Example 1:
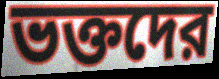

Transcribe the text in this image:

ভক্তদের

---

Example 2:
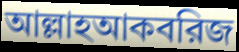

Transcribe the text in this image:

আল্লাহআকবরিজ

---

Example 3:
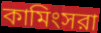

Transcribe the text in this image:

কামিংসরা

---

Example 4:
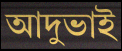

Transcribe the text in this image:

আদুভাই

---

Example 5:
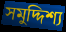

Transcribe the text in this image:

সমুদ্দিশ্য